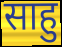
साहु